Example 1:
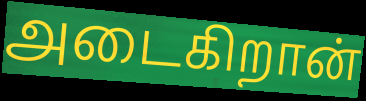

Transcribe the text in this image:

அடைகிறான்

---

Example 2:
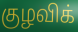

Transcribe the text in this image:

குழவிக்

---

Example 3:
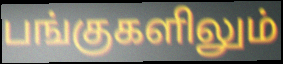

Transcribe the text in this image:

பங்குகளிலும்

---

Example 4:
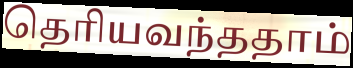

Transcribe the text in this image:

தெரியவந்ததாம்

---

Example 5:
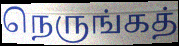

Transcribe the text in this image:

நெருங்கத்